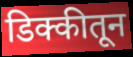
डिक्कीतून